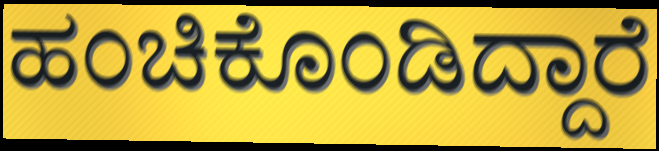
ಹಂಚಿಕೊಂಡಿದ್ದಾರೆ